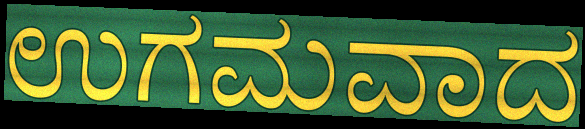
ಉಗಮವಾದ